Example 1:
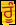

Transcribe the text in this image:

ਰੂੰ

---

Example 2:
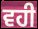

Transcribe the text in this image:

ਵਹੀ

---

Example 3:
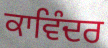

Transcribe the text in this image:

ਕਾਵਿੰਦਰ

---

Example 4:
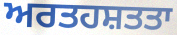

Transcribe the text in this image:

ਅਰਤਹਸ਼ਤਤਾ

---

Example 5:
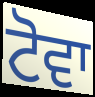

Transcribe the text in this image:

ਟੋਵਾ